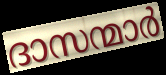
ദാസന്മാർ